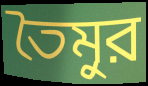
তৈমুর